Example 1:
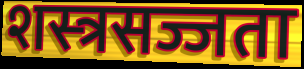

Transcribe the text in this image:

शस्त्रसज्जता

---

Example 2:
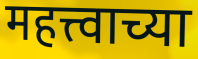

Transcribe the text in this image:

महत्त्वाच्या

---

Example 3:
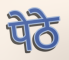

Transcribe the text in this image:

पेठे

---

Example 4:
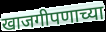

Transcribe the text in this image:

खाजगीपणाच्या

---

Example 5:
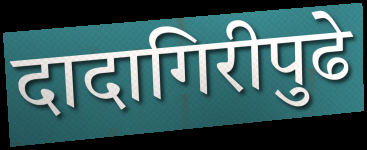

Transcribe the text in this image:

दादागिरीपुढे